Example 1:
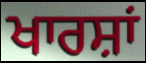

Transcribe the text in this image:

ਖਾਰਸ਼ਾਂ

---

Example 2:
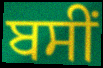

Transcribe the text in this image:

ਬਸੀਂ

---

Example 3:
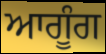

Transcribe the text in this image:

ਆਗੂੰਗ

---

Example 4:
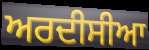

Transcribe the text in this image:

ਅਰਦੀਸੀਆ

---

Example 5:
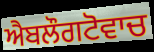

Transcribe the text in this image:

ਐਬਲੌਗਟੋਵਾਚ